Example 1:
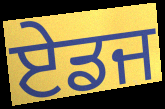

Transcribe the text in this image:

ਏਡਜ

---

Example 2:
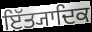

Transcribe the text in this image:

ਇੱਤ੍ਯਾਦਿਕ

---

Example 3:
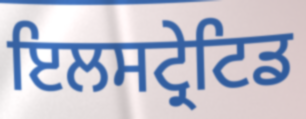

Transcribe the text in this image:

ਇਲਸਟ੍ਰੇਟਿਡ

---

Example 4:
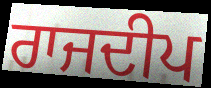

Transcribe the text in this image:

ਰਾਜਦੀਪ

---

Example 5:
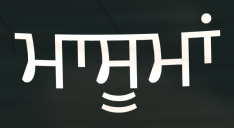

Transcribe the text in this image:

ਮਾਸੂਮਾਂ